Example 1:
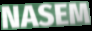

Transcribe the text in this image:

NASEM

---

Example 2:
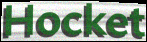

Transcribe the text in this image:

Hocket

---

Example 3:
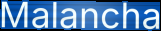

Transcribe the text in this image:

Malancha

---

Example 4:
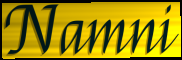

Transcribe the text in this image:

Namni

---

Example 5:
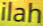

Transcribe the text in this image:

ilah